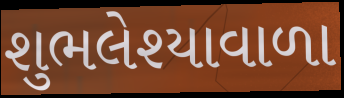
શુભલેશ્યાવાળા